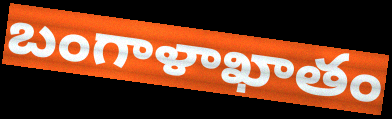
బంగాళాఖాతం